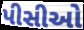
પીસીઓ